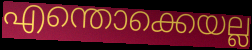
എന്തൊക്കെയല്ല